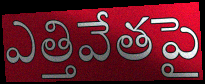
ఎత్తివేతపై